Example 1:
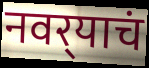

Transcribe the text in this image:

नवर्‍याचं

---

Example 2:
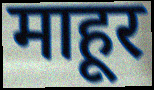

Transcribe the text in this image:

माहूर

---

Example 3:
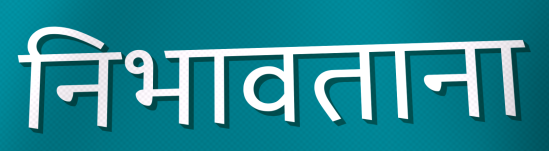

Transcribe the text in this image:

निभावताना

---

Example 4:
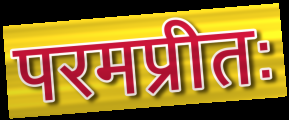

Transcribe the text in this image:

परमप्रीतः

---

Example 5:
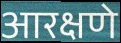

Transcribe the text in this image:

आरक्षणे